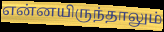
என்னயிருந்தாலும்